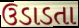
ઉડાડતા